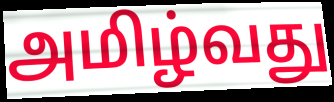
அமிழ்வது